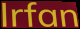
Irfan